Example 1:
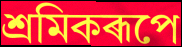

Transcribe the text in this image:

শ্ৰমিকৰূপে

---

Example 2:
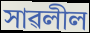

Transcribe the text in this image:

সাৱলীল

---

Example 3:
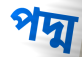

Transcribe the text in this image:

পদ্ম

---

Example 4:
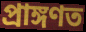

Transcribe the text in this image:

প্ৰাঙ্গণত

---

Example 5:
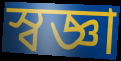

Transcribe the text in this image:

স্বজ্ঞা